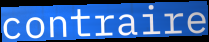
contraire